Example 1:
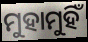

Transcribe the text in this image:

ମୁହାମୁହିଁ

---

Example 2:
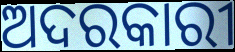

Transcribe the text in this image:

ଅଦରକାରୀ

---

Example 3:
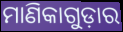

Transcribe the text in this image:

ମାଣିକାଗୁଡ଼ାର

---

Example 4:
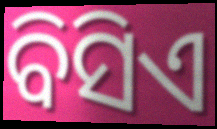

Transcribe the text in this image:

ବିସିଏ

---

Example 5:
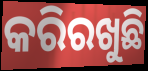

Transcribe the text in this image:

କରିରଖୁଛି